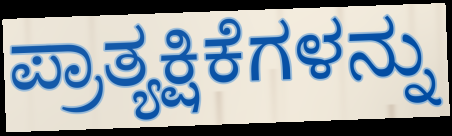
ಪ್ರಾತ್ಯಕ್ಷಿಕೆಗಳನ್ನು